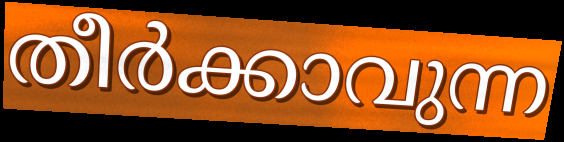
തീർക്കാവുന്ന